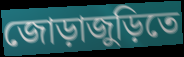
জোড়াজুড়িতে